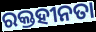
ରକ୍ତହୀନତା